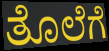
ತೊಲೆಗೆ